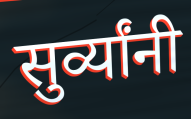
सुर्व्यांनी